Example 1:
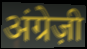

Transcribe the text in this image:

अंग्रेज़ी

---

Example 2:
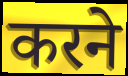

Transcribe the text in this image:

करने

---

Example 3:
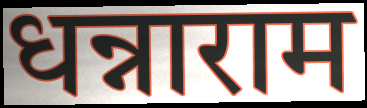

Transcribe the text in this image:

धन्नाराम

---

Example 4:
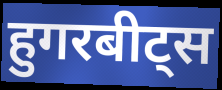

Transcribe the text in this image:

हुगरबीट्स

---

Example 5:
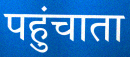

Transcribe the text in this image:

पहुंचाता